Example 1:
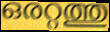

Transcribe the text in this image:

ഒരറ്റത്തു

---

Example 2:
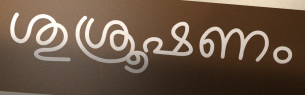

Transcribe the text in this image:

ശുശ്രൂഷണം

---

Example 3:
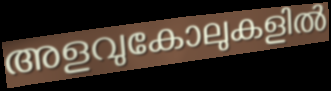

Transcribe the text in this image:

അളവുകോലുകളിൽ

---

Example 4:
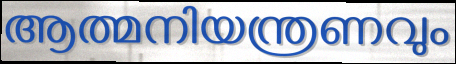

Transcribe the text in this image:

ആത്മനിയന്ത്രണവും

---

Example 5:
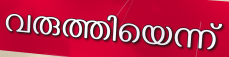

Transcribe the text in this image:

വരുത്തിയെന്ന്